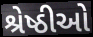
શ્રેષ્ઠીઓ